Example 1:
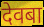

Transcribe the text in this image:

देवबा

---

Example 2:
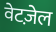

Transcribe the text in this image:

वेटज़ेल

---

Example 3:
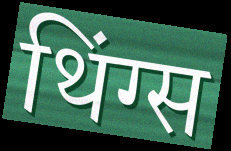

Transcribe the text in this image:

थिंग्स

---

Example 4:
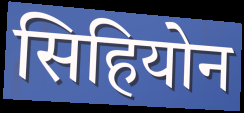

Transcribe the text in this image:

सिहियोन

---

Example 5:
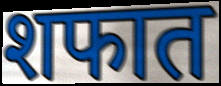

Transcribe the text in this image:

शफात